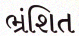
ભ્રંશિત